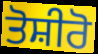
ਤੋਸ਼ੀਰੋ